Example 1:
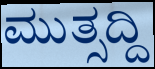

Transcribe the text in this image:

ಮುತ್ಸದ್ದಿ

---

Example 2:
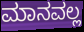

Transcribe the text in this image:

ಮಾನವಲ್ಲ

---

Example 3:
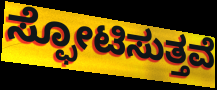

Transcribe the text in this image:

ಸ್ಫೋಟಿಸುತ್ತವೆ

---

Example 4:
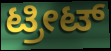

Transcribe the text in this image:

ಟ್ರೀಟ್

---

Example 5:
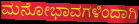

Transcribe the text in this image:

ಮನೋಭಾವಗಳಿಂದಾಗಿ